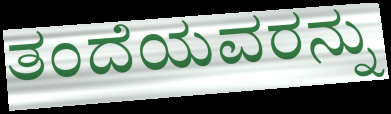
ತಂದೆಯವರನ್ನು